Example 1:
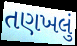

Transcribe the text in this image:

તણખલું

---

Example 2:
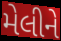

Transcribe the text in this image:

મેલીને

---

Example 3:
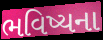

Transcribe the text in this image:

ભવિષ્યના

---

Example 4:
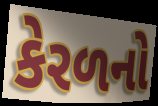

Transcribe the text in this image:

કેરળનો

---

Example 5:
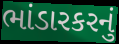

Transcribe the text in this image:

ભાંડારકરનું